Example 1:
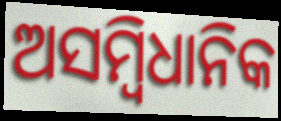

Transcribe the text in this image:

ଅସମ୍ବିଧାନିକ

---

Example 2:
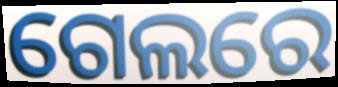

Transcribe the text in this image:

ଗେଲରେ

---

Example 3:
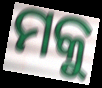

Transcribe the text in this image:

ମକୁ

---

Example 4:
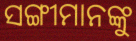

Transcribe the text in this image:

ସଙ୍ଗୀମାନଙ୍କୁ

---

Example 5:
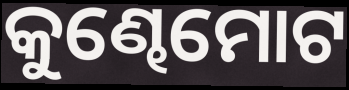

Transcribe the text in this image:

କୁଣ୍ଢେମୋଟ